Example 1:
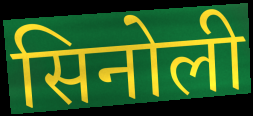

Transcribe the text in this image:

सिनोली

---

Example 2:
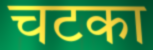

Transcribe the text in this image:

चटका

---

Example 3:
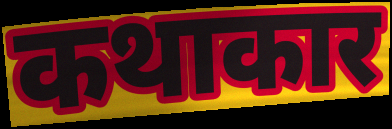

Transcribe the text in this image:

कथाकार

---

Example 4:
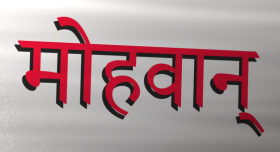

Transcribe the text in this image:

मोहवान्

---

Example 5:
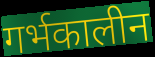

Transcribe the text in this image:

गर्भकालीन